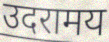
उदरामय